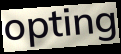
opting